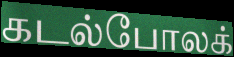
கடல்போலக்